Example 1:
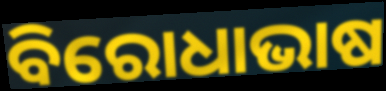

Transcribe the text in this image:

ବିରୋଧାଭାଷ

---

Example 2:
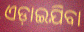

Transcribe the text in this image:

ଏଡ଼ାଇଯିବା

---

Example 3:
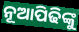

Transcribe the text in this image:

ନୂଆପିଢିଙ୍କୁ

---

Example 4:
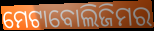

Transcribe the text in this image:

ମେଟାବୋଲିଜିମର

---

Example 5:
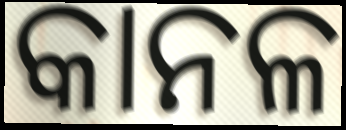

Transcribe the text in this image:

କାନଳ